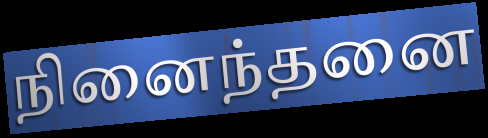
நினைந்தனை